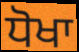
ਧੋਖਾ